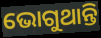
ଭୋଗୁଥାନ୍ତି